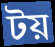
টয়